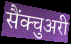
सैंक्चुअरी